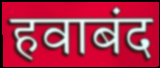
हवाबंद